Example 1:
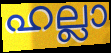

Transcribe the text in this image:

ഹല്ലാ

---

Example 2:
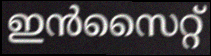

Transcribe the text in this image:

ഇൻസൈറ്റ്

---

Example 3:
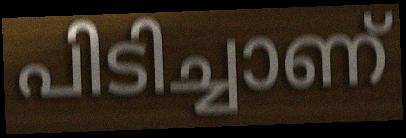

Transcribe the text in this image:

പിടിച്ചാണ്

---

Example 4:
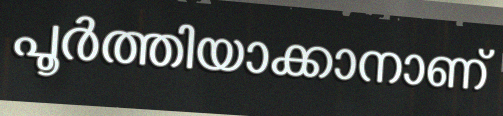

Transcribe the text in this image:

പൂർത്തിയാക്കാനാണ്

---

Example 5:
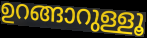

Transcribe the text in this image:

ഉറങ്ങാറുള്ളൂ